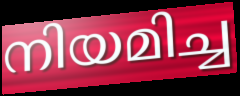
നിയമിച്ച